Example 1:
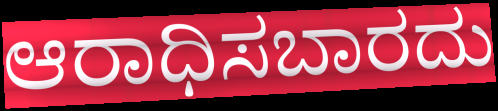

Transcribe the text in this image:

ಆರಾಧಿಸಬಾರದು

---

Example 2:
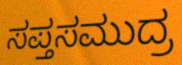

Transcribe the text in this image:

ಸಪ್ತಸಮುದ್ರ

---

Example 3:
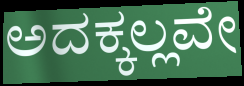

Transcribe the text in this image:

ಅದಕ್ಕಲ್ಲವೇ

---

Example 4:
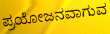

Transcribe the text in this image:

ಪ್ರಯೋಜನವಾಗುವ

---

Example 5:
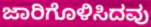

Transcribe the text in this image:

ಜಾರಿಗೊಳಿಸಿದವು